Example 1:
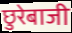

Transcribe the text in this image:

छुरेबाजी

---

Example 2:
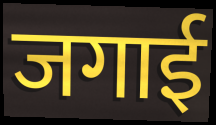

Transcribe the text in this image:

जगाई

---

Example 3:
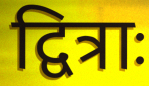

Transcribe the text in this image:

द्वित्राः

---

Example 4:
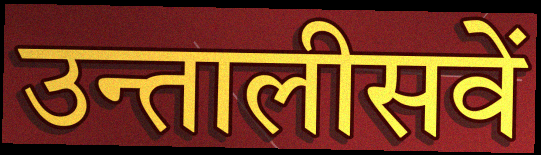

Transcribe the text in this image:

उन्तालीसवें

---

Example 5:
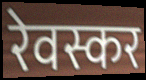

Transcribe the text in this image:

रेवस्कर